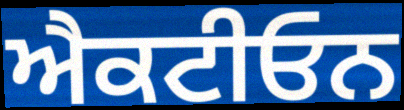
ਐਕਟੀਓਨ